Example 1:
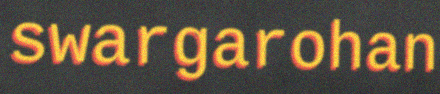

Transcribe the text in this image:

swargarohan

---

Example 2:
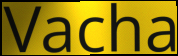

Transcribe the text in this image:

Vacha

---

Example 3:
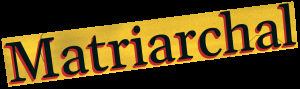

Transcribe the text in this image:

Matriarchal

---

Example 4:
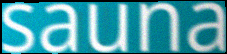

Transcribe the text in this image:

sauna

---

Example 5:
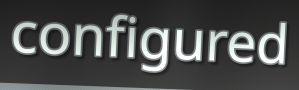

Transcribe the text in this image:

configured